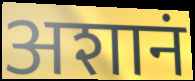
अशानं